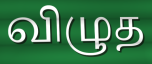
விழுத